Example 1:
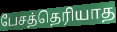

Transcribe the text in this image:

பேசத்தெரியாத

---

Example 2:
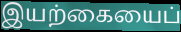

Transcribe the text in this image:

இயற்கையைப்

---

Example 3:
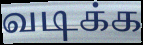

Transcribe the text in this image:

வடிக்க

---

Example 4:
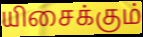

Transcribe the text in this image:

யிசைக்கும்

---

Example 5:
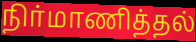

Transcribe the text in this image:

நிர்மாணித்தல்